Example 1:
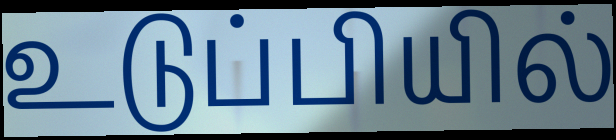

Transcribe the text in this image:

உடுப்பியில்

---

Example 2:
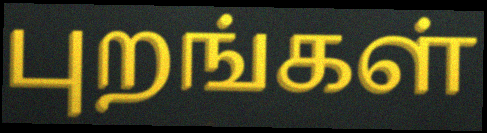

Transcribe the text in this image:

புறங்கள்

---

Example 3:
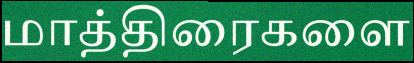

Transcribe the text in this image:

மாத்திரைகளை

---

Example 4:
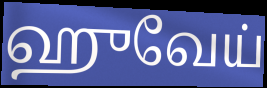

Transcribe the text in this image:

ஹுவேய்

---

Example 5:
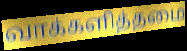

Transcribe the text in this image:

வாக்களித்தமை